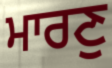
ਮਾਰਣੁ